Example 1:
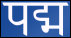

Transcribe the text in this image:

पद्म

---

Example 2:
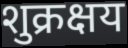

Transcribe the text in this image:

शुक्रक्षय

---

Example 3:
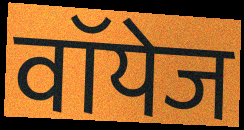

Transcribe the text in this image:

वॉयेज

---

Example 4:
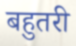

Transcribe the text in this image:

बहुतरी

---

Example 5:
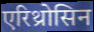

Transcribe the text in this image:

एरिथ्रोसिन